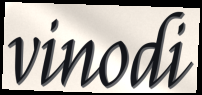
vinodi